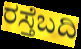
ರಸ್ತೆಬದಿ